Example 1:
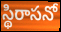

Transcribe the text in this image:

స్థిరాసనో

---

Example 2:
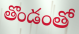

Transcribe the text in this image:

తొండంతో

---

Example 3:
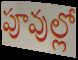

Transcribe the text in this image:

పూవుల్లో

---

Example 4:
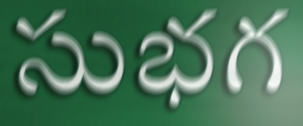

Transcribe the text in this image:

సుభగ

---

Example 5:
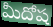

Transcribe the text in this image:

మీదోష